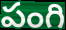
పంగి